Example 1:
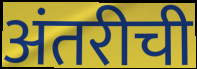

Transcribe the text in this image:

अंतरीची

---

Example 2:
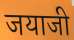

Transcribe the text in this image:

जयाजी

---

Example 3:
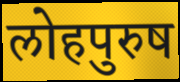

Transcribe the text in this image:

लोहपुरुष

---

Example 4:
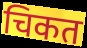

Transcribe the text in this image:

चिकत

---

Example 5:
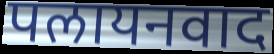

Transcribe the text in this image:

पलायनवाद